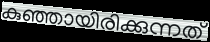
കുഞ്ഞായിരിക്കുന്നത്